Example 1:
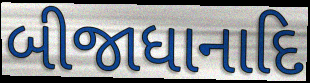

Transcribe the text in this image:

બીજાધાનાદિ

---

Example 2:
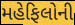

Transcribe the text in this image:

મહેફિલોની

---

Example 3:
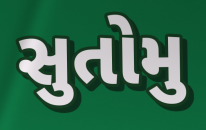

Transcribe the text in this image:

સુતોમુ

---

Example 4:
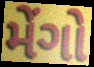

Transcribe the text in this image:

મેંગો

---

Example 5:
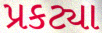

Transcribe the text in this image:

પ્રકટ્યા